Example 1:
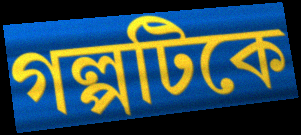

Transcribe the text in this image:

গল্পটিকে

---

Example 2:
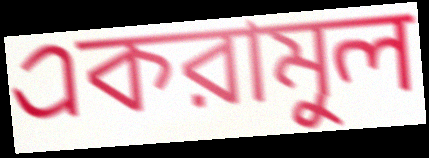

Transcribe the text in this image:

একরামুল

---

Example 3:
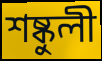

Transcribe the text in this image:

শষ্কুলী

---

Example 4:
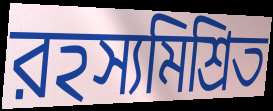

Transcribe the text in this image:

রহস্যমিশ্রিত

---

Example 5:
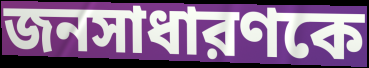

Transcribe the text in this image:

জনসাধারণকে